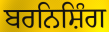
ਬਰਨਿਸ਼ਿੰਗ